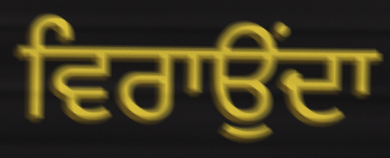
ਵਿਰਾਉਂਦਾ